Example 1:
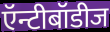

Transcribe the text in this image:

ऍन्टीबॉडीज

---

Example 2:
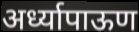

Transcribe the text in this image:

अर्ध्यापाऊण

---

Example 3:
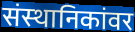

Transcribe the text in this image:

संस्थानिकांवर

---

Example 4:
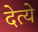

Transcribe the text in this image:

देत्ये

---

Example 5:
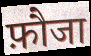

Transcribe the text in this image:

फ़ौजा